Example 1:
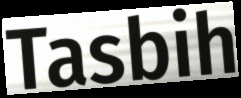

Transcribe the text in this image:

Tasbih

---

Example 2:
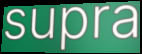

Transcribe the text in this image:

supra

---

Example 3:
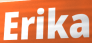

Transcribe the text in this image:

Erika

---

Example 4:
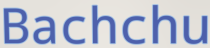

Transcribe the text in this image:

Bachchu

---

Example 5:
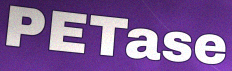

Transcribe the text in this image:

PETase